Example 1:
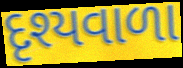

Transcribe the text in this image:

દૃશ્યવાળા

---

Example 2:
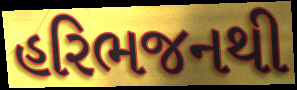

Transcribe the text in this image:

હરિભજનથી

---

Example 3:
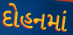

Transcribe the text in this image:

દોહનમાં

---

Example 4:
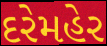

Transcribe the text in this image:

દરેમહેર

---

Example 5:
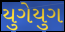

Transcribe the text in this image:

યુગેયુગ